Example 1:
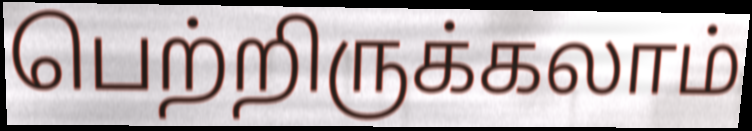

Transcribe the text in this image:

பெற்றிருக்கலாம்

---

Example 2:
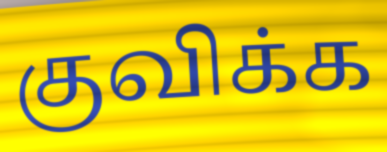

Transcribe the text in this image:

குவிக்க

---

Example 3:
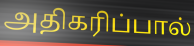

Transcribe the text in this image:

அதிகரிப்பால்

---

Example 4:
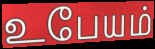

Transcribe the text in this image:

உபேயம்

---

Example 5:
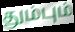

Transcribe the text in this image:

தும்பும்